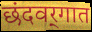
छंदवर्गात